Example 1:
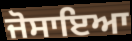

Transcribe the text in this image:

ਜੋਸਾਇਆ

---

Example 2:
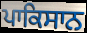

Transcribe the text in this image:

ਪਾਕਿਸਾਨ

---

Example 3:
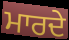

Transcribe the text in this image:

ਮਾਰਦੇ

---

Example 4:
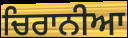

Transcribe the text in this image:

ਚਿਰਾਨੀਆ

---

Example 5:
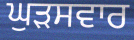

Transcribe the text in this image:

ਘੁੜਸਵਾਰ